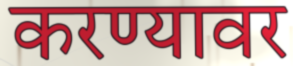
करण्यावर